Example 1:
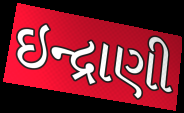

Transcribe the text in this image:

ઇન્દ્રાણી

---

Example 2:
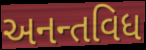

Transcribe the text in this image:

અનન્તવિધ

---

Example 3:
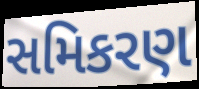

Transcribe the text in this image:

સમિકરણ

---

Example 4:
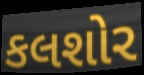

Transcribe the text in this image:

કલશોર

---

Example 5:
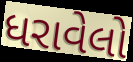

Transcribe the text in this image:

ધરાવેલો